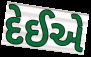
દેઈએ